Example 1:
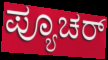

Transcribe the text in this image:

ಪ್ಯೂಚರ್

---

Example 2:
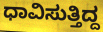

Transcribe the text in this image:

ಧಾವಿಸುತ್ತಿದ್ದ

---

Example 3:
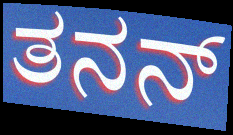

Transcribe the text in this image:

ತನನ್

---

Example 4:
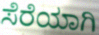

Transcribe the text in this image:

ಸೆರೆಯಾಗಿ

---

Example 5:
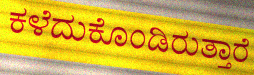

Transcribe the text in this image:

ಕಳೆದುಕೊಂಡಿರುತ್ತಾರೆ